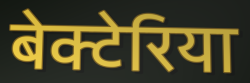
बेक्टेरिया